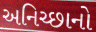
અનિચ્છાનો